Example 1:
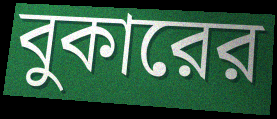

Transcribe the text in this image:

বুকারের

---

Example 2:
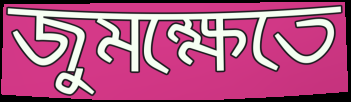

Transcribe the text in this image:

জুমক্ষেতে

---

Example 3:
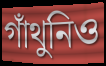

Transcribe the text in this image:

গাঁথুনিও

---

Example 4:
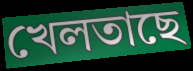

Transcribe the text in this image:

খেলতাছে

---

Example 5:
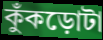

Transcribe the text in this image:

কুঁকড়োটা